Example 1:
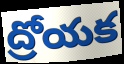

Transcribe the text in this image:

ద్రోయక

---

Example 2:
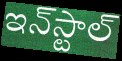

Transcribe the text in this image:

ఇన్‌స్టాల్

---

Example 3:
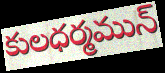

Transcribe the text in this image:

కులధర్మమున్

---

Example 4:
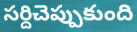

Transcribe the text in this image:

సర్దిచెప్పుకుంది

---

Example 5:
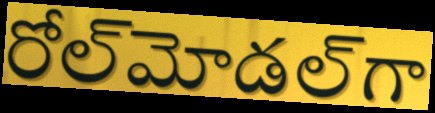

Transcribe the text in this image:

రోల్‌మోడల్‌గా